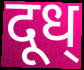
दूध्